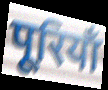
पूरियाँ